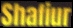
Shafiur